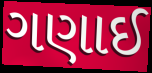
ગણાઈ